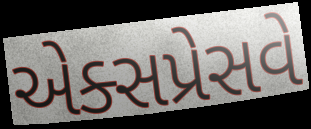
એક્સપ્રેસવે